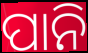
ପାନି